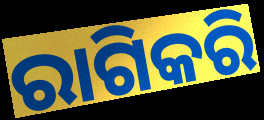
ରାଗିକରି